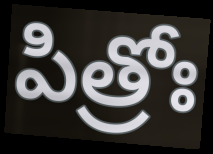
పిత్రోః